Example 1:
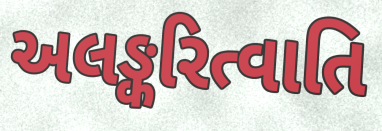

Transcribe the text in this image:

અલઙ્કરિત્વાતિ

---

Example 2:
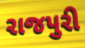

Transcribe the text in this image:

રાજપુરી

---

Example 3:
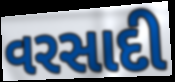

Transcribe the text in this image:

વરસાદી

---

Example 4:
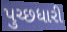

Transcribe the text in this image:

પુચ્છધારી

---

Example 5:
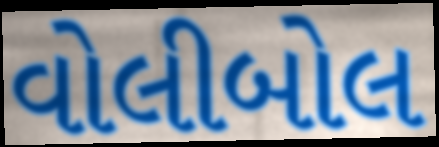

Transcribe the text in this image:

વોલીબોલ